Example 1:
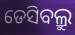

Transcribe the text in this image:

ଡେସିବଲ୍ରୁ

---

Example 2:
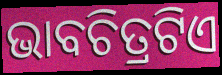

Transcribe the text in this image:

ଭାବଚିତ୍ରଟିଏ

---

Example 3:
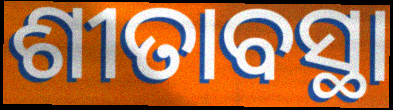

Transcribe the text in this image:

ଶୀତାବସ୍ଥା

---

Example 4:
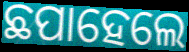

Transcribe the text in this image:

ଛପାହେଲେ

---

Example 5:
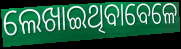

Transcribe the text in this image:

ଲେଖାଇଥିବାବେଳେ